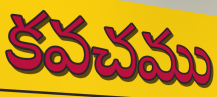
కవచము